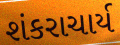
શંકરાચાર્ય